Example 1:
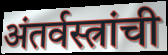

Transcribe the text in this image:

अंतर्वस्त्रांची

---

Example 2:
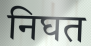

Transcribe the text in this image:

निघत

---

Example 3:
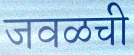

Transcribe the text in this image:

जवळची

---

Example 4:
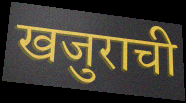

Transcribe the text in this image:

खजुराची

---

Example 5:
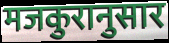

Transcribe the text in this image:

मजकुरानुसार